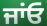
ਜਾਂਓ